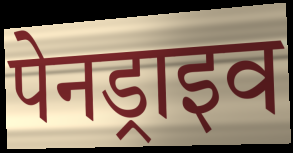
पेनड्राइव